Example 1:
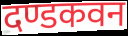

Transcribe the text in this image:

दण्डकवन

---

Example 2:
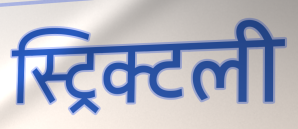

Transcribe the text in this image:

स्ट्रिक्टली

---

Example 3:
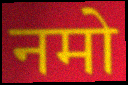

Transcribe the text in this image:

नमो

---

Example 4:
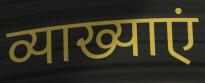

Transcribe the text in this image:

व्याख्याएं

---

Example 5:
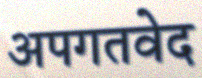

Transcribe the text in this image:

अपगतवेद